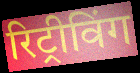
रिट्रीविंग